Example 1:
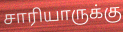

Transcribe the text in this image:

சாரியாருக்கு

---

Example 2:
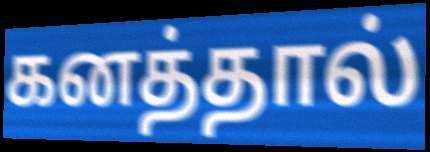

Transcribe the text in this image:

கனத்தால்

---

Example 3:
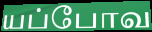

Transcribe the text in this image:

யப்போவ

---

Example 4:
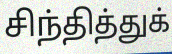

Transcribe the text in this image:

சிந்தித்துக்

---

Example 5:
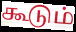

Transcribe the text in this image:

கூடும்